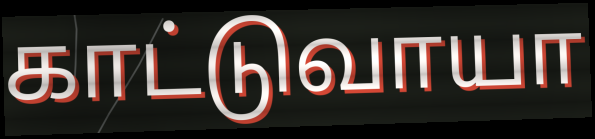
காட்டுவாயா